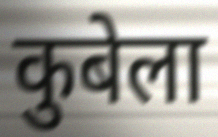
कुबेला